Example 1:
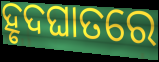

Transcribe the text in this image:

ହୃଦଘାତରେ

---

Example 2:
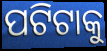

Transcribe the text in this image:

ପଟିଟାକୁ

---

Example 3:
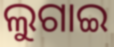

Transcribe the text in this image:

ଲୁଗାଇ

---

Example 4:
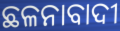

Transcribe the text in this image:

ଛଳନାବାଦୀ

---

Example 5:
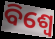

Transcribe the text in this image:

ବିଶ୍ଵେ